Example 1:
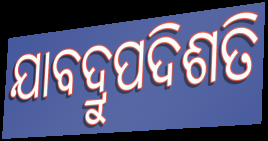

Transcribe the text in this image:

ଯାବଦ୍ରୁପଦିଶତି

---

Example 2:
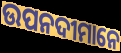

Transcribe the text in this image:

ଉପନଦୀମାନେ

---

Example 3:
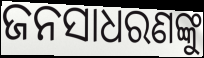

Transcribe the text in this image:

ଜନସାଧରଣଙ୍କୁ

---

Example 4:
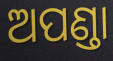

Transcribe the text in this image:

ଅପଣ୍ଡା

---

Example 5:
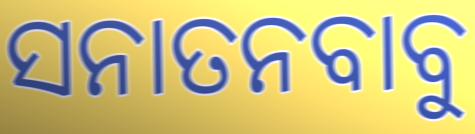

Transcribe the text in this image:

ସନାତନବାବୁ